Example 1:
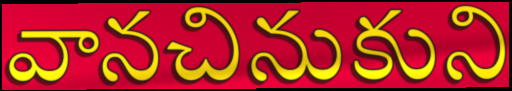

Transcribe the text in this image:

వానచినుకుని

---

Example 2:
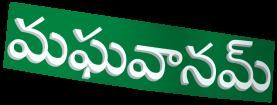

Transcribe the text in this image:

మఘవానమ్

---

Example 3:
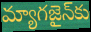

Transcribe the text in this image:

మ్యాగజైన్‌కు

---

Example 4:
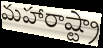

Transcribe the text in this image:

మహారాష్ట్రా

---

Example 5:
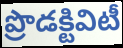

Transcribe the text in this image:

ప్రొడక్టివిటీ